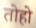
तोहो